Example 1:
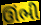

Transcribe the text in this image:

ઊંભી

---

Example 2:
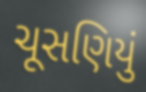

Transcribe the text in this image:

ચૂસણિયું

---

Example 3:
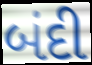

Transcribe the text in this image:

બંદી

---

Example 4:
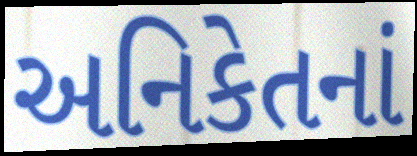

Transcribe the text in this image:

અનિકેતનાં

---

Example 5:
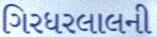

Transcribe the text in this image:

ગિરધરલાલની